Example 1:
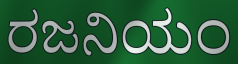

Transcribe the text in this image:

ರಜನಿಯಂ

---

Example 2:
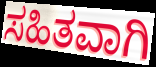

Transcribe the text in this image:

ಸಹಿತವಾಗಿ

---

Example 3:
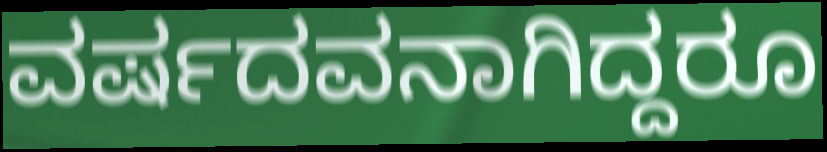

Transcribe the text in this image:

ವರ್ಷದವನಾಗಿದ್ದರೂ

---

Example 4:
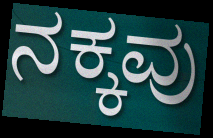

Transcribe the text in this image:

ನಕ್ಕವು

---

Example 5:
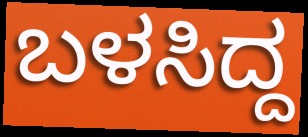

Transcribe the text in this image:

ಬಳಸಿದ್ದ